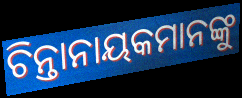
ଚିନ୍ତାନାୟକମାନଙ୍କୁ